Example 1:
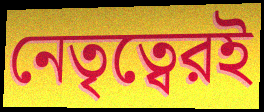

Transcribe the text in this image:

নেতৃত্বেরই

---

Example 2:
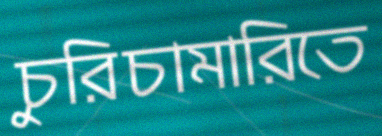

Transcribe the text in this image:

চুরিচামারিতে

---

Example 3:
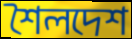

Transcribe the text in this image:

শৈলদেশ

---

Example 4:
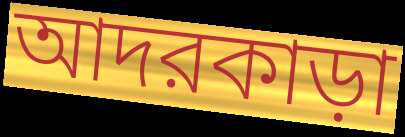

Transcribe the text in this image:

আদরকাড়া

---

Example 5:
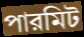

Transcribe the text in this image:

পারমিট